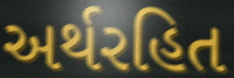
અર્થરહિત